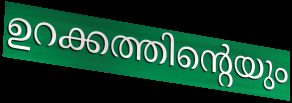
ഉറക്കത്തിന്റെയും